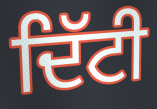
ਦਿੱਟੀ